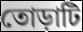
তোড়াটি